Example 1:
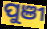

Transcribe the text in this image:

ପୁଞୀ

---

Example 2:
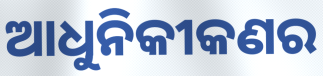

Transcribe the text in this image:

ଆଧୁନିକୀକଣର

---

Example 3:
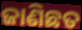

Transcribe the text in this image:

ଜାଣିଛତ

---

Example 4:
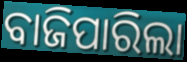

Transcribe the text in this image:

ବାଜିପାରିଲା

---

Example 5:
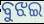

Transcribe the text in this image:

ବୁଝଇ